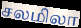
சலமிலா